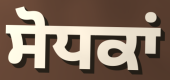
ਸੋਧਕਾਂ